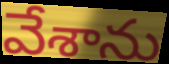
వేశాను